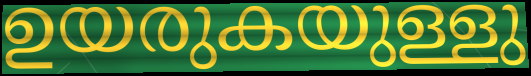
ഉയരുകയുള്ളു